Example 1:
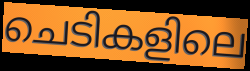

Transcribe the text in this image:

ചെടികളിലെ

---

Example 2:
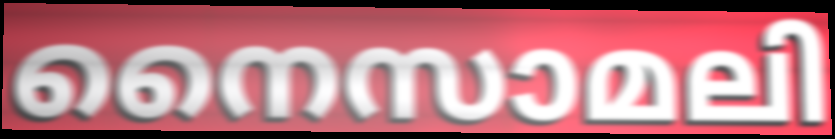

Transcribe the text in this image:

നൈസാമലി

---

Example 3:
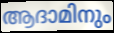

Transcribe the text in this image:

ആദാമിനും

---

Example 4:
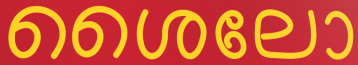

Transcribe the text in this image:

ശൈലോ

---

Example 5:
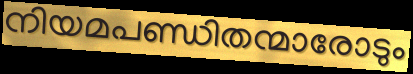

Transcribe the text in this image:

നിയമപണ്ഡിതന്മാരോടും